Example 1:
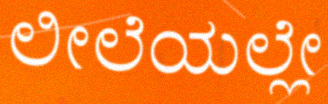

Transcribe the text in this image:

ಲೀಲೆಯಲ್ಲೇ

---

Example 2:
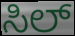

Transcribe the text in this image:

ಸಿಲ್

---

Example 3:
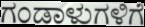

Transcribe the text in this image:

ಗಂಡಾಳುಗಳಿಗೆ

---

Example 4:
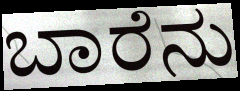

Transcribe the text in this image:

ಬಾರೆನು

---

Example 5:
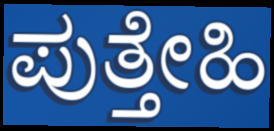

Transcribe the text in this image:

ಪುತ್ತೇಹಿ